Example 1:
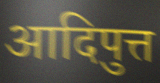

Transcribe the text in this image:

आदिपुत्त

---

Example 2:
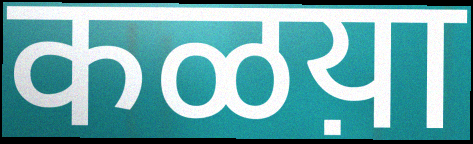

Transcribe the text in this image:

कळय़ा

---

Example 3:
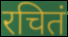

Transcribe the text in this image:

रचितं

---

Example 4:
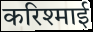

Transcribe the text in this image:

करिश्माई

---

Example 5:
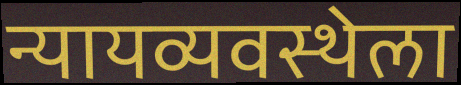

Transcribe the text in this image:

न्यायव्यवस्थेला